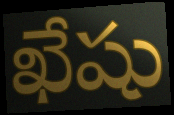
ఖేషు